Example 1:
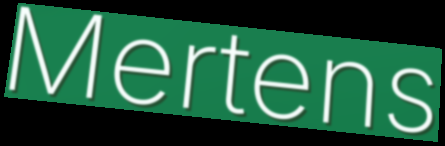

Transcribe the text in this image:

Mertens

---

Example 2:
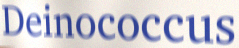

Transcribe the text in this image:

Deinococcus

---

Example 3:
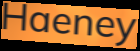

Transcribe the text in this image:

Haeney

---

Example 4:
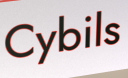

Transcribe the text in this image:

Cybils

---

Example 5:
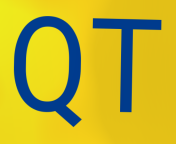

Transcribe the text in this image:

QT